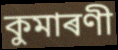
কুমাৰণী